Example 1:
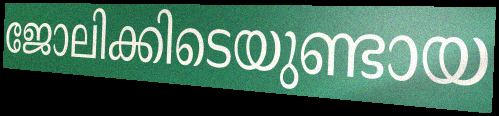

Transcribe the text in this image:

ജോലിക്കിടെയുണ്ടായ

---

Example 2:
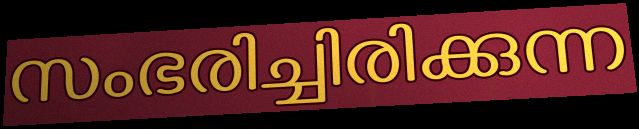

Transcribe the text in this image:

സംഭരിച്ചിരിക്കുന്ന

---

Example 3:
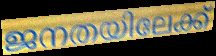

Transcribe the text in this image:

ജനതയിലേക്ക്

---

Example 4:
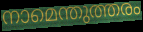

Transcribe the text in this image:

നാമെന്തുത്തരം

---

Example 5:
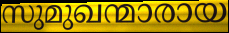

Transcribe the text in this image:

സുമുഖന്മാരായ